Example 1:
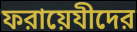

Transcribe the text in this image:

ফরায়েযীদের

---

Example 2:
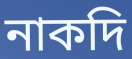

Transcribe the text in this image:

নাকদি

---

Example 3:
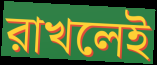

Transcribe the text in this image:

রাখলেই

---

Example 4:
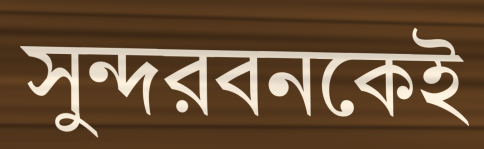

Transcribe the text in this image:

সুন্দরবনকেই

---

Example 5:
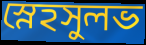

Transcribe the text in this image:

স্নেহসুলভ